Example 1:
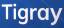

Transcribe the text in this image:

Tigray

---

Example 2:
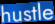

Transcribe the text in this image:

hustle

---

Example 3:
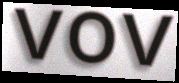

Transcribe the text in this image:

vov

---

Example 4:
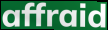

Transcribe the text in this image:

affraid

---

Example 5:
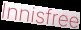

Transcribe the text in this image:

Innisfree